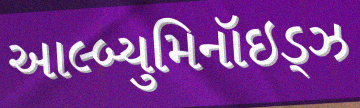
આલ્બ્યુમિનૉઇડ્ઝ